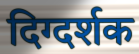
दिग्‍दर्शक